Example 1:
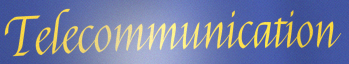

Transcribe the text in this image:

Telecommunication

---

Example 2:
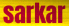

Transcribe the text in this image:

sarkar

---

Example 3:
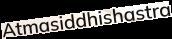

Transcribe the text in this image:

Atmasiddhishastra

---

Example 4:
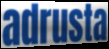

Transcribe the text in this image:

adrusta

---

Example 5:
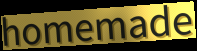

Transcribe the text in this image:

homemade